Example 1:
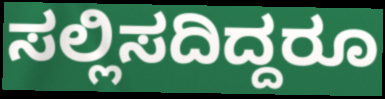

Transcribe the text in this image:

ಸಲ್ಲಿಸದಿದ್ದರೂ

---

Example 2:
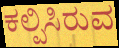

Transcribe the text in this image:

ಕಲ್ಪಿಸಿರುವ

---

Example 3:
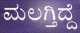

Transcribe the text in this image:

ಮಲಗ್ತಿದ್ದೆ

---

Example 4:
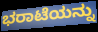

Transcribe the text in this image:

ಭರಾಟೆಯನ್ನು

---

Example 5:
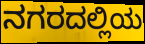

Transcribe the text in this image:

ನಗರದಲ್ಲಿಯ